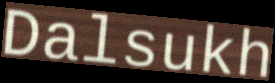
Dalsukh